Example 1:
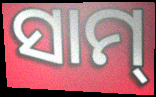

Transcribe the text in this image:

ସାମ୍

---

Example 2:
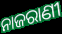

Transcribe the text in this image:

ନାଜରାଣୀ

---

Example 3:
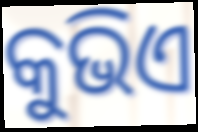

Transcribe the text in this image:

କୁଭିଏ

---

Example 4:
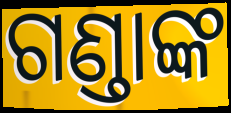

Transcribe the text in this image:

ଗଣ୍ଡାଙ୍କ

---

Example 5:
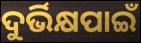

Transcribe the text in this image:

ଦୁର୍ଭିକ୍ଷପାଇଁ